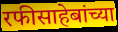
रफीसाहेबांच्या